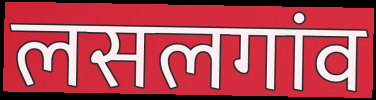
लसलगांव